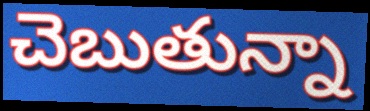
చెబుతున్నా